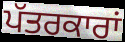
ਪੱਤਰਕਾਰਾਂ